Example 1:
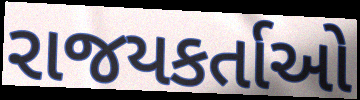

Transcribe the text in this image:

રાજયકર્તાઓ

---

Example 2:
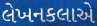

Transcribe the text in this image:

લેખનકલાએ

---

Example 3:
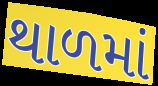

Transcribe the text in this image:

થાળમાં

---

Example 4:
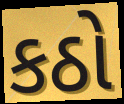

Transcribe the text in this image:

કઠો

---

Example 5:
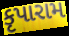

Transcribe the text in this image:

કૃપારામ